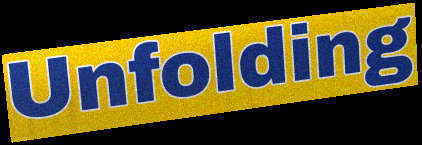
Unfolding